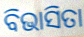
ବିଭାସିତା